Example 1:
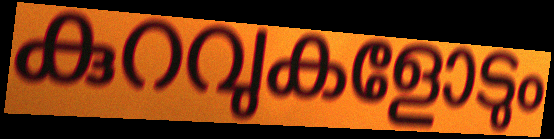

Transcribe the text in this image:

കുറവുകളോടും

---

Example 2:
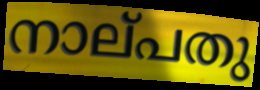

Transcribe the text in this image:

നാല്‌പതു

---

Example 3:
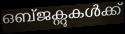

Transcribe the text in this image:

ഒബ്ജക്റ്റുകൾക്ക്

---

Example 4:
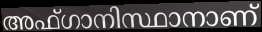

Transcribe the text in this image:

അഫ്ഗാനിസ്ഥാനാണ്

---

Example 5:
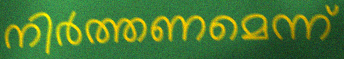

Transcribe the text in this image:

നിർത്തണമെന്ന്